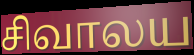
சிவாலய